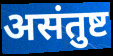
असंतुष्ट